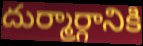
దుర్మార్గానికి